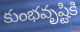
కుంభవృష్టికి